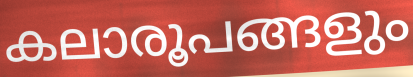
കലാരൂപങ്ങളും